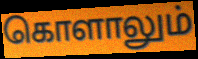
கொளாலும்